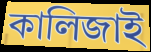
কালিজাই